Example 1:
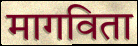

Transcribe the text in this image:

मागविता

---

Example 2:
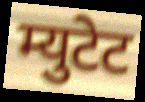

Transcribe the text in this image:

म्युटेट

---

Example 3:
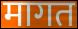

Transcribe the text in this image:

मागत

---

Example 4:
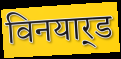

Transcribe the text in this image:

विनयार्ड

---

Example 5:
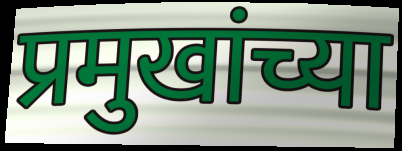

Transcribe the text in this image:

प्रमुखांच्या